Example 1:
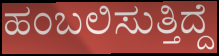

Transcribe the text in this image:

ಹಂಬಲಿಸುತ್ತಿದ್ದೆ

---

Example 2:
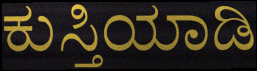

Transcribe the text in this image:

ಕುಸ್ತಿಯಾಡಿ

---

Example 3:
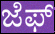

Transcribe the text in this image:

ಜೆಫ್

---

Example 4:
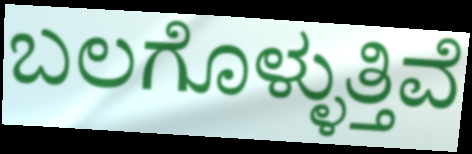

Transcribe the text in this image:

ಬಲಗೊಳ್ಳುತ್ತಿವೆ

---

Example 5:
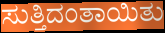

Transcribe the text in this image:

ಸುತ್ತಿದಂತಾಯಿತು